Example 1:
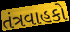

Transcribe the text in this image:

તંત્રવાહકો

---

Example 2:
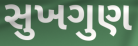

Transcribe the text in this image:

સુખગુણ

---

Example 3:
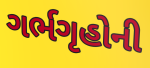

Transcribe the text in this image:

ગર્ભગૃહોની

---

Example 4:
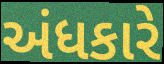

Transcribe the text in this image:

અંધકારે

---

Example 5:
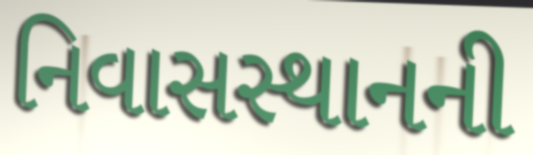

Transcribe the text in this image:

નિવાસસ્થાનની